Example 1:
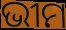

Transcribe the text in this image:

ଭୀମ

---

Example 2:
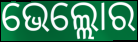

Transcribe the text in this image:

ଭେଲ୍ଲୋର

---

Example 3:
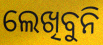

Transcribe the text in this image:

ଲେଖିବୁନି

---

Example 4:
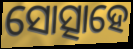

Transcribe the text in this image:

ସୋତ୍ସାହେ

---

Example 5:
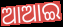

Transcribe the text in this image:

ଆଆଇ